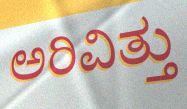
ಅರಿವಿತ್ತು